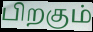
பிறகும்